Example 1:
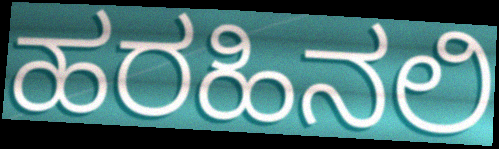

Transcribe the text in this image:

ಹರಹಿನಲಿ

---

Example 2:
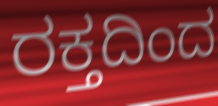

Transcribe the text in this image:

ರಕ್ತದಿಂದ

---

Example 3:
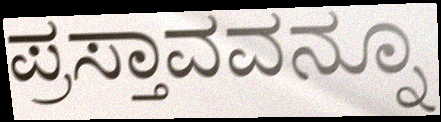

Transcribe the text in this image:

ಪ್ರಸ್ತಾವವನ್ನೂ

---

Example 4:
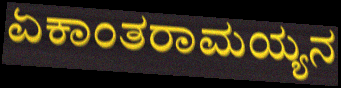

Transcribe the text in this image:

ಏಕಾಂತರಾಮಯ್ಯನ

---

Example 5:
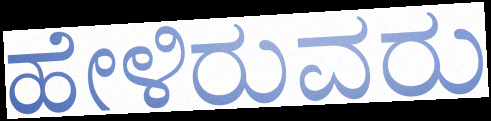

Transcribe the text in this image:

ಹೇಳಿರುವರು